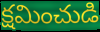
క్షమించుడి